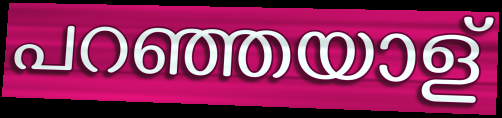
പറഞ്ഞയാള്